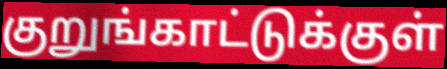
குறுங்காட்டுக்குள்